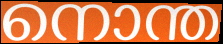
നൊന്ത